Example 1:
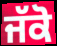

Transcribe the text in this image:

ਜੱਕੋ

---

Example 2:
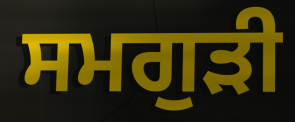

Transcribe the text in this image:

ਸਮਗੁੜੀ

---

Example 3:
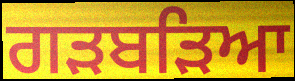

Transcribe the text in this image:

ਗੜਬੜਿਆ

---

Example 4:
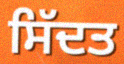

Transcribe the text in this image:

ਸਿੱਦਤ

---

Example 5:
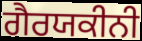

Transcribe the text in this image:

ਗੈਰਯਕੀਨੀ